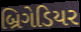
બ્રિગેડિયર